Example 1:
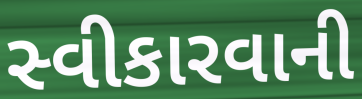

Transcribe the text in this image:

સ્વીકારવાની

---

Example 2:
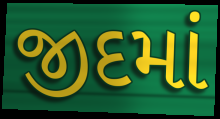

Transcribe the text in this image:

જીદમાં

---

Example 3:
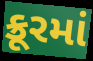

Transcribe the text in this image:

ક્રૂરમાં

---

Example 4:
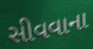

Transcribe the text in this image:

સીવવાના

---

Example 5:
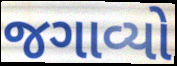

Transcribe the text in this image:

જગાવ્યો